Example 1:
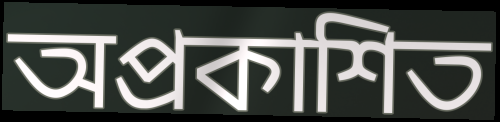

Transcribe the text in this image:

অপ্রকাশিত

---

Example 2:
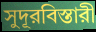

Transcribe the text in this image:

সুদূরবিস্তারী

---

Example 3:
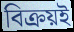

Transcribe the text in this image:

বিক্রয়ই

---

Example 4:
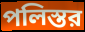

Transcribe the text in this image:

পলিস্তর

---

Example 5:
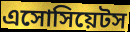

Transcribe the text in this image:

এসোসিয়েটস